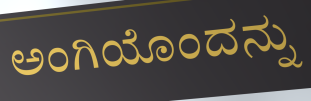
ಅಂಗಿಯೊಂದನ್ನು